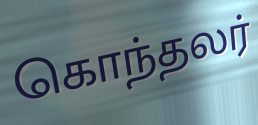
கொந்தலர்